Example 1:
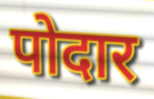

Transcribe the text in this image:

पोदार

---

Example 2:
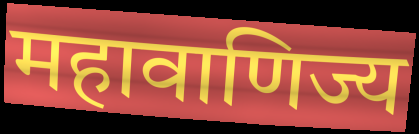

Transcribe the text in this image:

महावाणिज्य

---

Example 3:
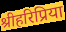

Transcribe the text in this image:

श्रीहरिप्रिया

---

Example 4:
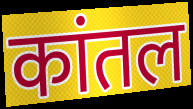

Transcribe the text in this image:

कांतल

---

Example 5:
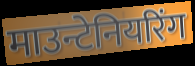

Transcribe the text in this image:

माउन्टेनियरिंग